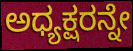
ಅಧ್ಯಕ್ಷರನ್ನೇ